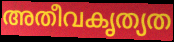
അതീവകൃത്യത